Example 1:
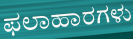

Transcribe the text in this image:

ಫಲಾಹಾರಗಳು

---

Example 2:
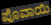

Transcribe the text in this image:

ಪೊವಾಯಿ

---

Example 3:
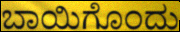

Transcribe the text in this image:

ಬಾಯಿಗೊಂದು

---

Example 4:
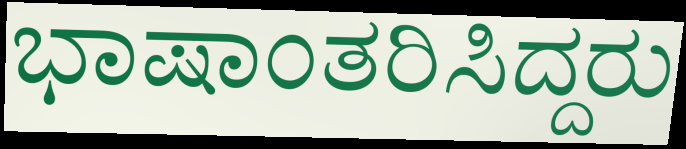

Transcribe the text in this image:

ಭಾಷಾಂತರಿಸಿದ್ದರು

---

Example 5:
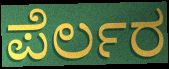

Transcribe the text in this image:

ಪೆರ್ಲರ